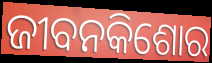
ଜୀବନକିଶୋର